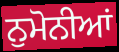
ਨੁਮੋਨੀਆਂ